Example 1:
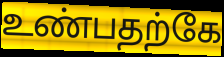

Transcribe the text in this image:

உண்பதற்கே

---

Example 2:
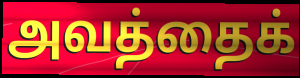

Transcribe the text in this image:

அவத்தைக்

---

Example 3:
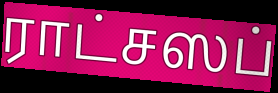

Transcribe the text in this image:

ராட்சஸப்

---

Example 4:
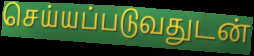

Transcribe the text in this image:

செய்யப்படுவதுடன்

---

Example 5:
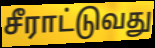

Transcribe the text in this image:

சீராட்டுவது